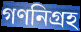
গণনিগ্রহ